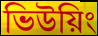
ভিউয়িং